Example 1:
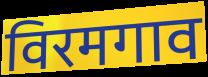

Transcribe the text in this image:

विरमगाव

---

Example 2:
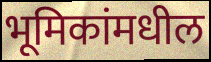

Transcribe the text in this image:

भूमिकांमधील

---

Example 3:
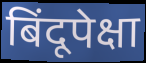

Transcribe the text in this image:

बिंदूपेक्षा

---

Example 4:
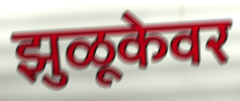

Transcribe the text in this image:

झुळूकेवर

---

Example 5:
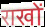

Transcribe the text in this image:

राखों